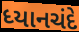
ધ્યાનચંદે